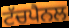
ਟੱਚਪੈਨਲ